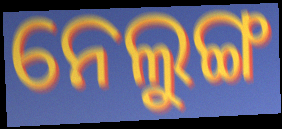
ନେଲୁଙ୍ଗ